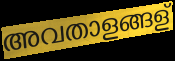
അവതാളങ്ങള്